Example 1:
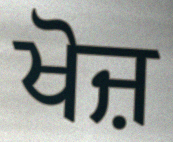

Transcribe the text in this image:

ਖੋਜ਼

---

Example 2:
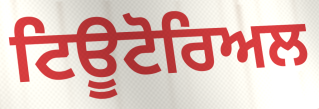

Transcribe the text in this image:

ਟਿਊਟੋਰਿਅਲ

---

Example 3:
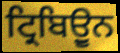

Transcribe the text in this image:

ਟ੍ਰਿਬਿਉੂਨ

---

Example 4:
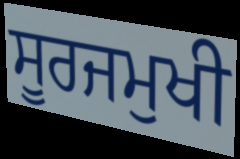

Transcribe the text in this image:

ਸੂਰਜਮੁਖੀ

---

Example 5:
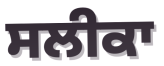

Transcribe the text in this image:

ਸਲੀਕਾ